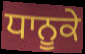
ਧਾਨੂਕੇ